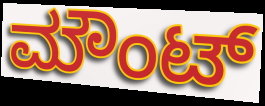
ಮೌಂಟ್